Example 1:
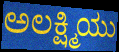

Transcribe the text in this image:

ಅಲಕ್ಷ್ಮಿಯು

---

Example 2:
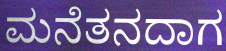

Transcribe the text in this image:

ಮನೆತನದಾಗ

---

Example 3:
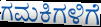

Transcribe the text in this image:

ಗಮಕಿಗಳಿಗೆ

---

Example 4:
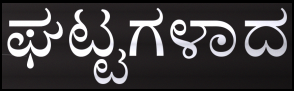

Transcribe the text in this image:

ಘಟ್ಟಗಳಾದ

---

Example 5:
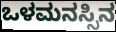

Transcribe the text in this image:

ಒಳಮನಸ್ಸಿನ